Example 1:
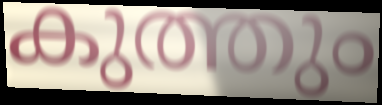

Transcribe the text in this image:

കുത്തും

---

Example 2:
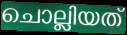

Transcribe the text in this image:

ചൊല്ലിയത്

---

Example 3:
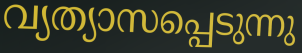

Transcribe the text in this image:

വ്യത്യാസപ്പെടുന്നു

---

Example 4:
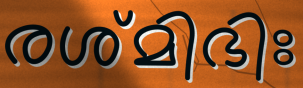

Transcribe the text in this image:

രശ്മിഭിഃ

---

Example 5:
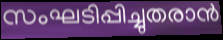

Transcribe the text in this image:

സംഘടിപ്പിച്ചുതരാൻ